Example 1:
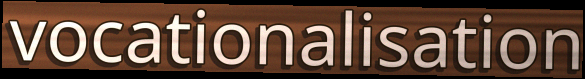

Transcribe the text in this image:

vocationalisation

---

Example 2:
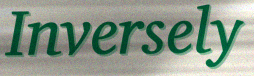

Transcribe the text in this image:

Inversely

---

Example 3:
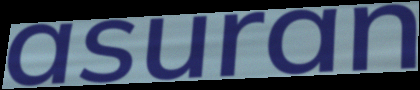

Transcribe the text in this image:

asuran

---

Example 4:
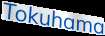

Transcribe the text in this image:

Tokuhama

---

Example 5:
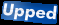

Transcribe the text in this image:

Upped